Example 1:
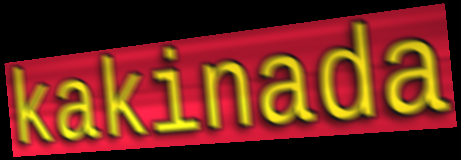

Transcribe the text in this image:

kakinada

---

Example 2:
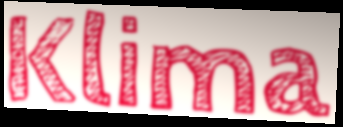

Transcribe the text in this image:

Klima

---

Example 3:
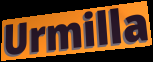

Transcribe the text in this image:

Urmilla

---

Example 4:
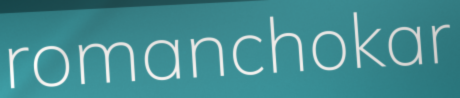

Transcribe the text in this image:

romanchokar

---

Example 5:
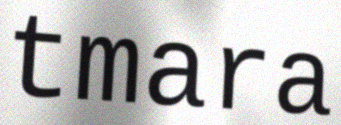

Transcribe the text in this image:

tmara